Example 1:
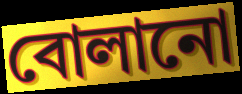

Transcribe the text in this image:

বোলানো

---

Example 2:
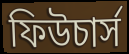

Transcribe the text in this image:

ফিউচার্স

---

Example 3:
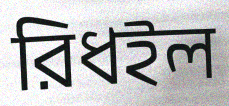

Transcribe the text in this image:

রিধইল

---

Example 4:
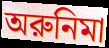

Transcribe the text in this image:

অরুনিমা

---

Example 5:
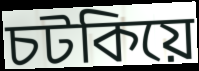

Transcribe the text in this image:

চটকিয়ে